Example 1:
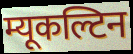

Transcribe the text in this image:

म्यूकल्टिन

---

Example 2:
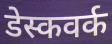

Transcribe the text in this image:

डेस्कवर्क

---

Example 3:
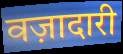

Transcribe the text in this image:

वज़ादारी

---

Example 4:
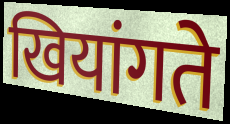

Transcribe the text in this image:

खियांगते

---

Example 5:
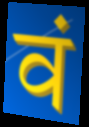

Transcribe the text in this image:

वं